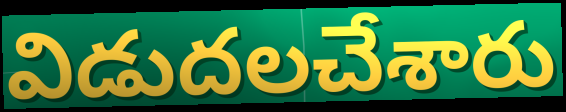
విడుదలచేశారు